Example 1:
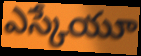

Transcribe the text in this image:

ఎస్కేయూ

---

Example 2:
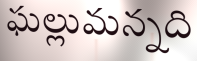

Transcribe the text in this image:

ఘల్లుమన్నది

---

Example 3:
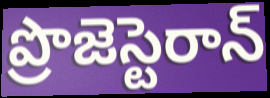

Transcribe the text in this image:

ప్రొజెస్టెరాన్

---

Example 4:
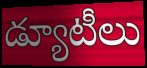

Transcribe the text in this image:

డ్యూటీలు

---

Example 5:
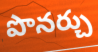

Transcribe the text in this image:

పొనర్చు